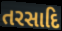
તરસાદિ